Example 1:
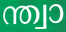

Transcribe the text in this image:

ന്ത്വാ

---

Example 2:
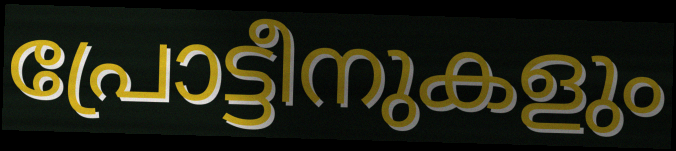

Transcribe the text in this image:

പ്രോട്ടീനുകളും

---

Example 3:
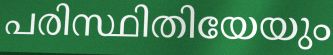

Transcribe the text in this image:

പരിസ്ഥിതിയേയും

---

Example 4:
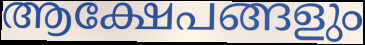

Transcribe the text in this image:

ആക്ഷേപങ്ങളും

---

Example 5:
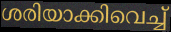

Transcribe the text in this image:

ശരിയാക്കിവെച്ച്